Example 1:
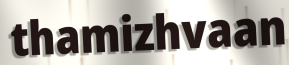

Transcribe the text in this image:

thamizhvaan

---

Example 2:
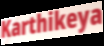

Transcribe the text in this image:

Karthikeya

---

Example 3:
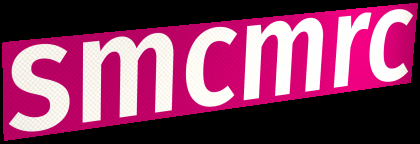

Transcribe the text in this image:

smcmrc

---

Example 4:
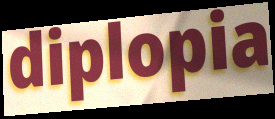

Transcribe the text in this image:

diplopia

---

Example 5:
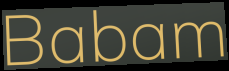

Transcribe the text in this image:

Babam